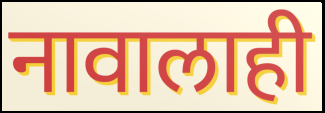
नावालाही